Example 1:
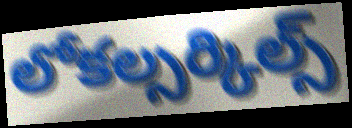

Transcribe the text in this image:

లోకల్సర్కిల్స్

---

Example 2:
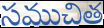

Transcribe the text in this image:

సముచిత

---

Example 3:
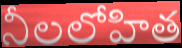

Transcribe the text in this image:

నీలలోహిత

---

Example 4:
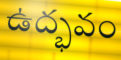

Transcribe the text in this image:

ఉద్భవం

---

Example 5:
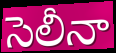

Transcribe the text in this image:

సెలీనా